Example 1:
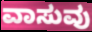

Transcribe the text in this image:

ವಾಸುವು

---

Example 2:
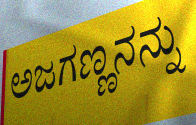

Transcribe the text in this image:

ಅಜಗಣ್ಣನನ್ನು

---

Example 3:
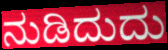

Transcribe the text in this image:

ನುಡಿದುದು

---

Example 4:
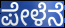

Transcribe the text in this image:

ಪೇಳೆನೆ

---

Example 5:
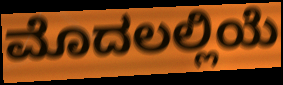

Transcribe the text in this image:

ಮೊದಲಲ್ಲಿಯೆ